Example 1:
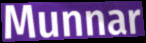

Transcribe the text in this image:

Munnar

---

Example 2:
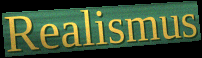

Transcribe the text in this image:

Realismus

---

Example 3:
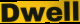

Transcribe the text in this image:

Dwell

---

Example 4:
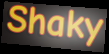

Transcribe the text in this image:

Shaky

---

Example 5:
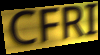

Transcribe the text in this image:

CFRI